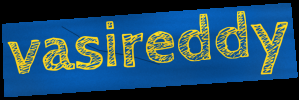
vasireddy